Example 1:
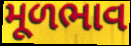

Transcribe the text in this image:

મૂળભાવ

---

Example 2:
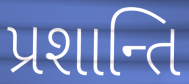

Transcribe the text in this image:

પ્રશાન્તિ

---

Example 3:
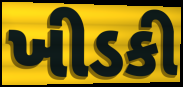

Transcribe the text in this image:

ખીડકી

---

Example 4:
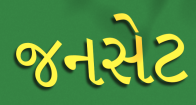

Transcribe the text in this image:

જનસેટ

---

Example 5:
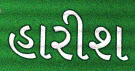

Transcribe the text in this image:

હારીશ